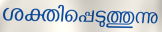
ശക്തിപ്പെടുത്തുന്നു